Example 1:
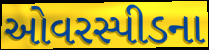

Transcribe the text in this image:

ઓવરસ્પીડના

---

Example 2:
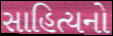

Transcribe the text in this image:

સાહિત્યનો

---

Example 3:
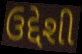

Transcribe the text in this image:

ઉદ્દેશી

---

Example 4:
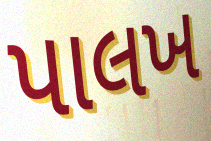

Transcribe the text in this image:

પાલખ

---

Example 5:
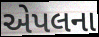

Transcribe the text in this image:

એપલના